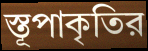
স্তূপাকৃতির